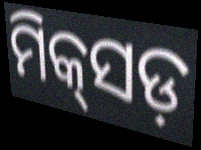
ମିକ୍‌ସଡ଼